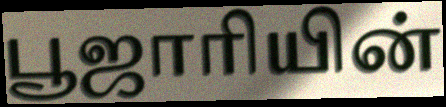
பூஜாரியின்